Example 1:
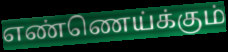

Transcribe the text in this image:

எண்ணெய்க்கும்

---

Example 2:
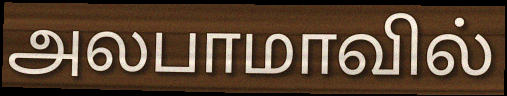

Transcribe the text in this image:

அலபாமாவில்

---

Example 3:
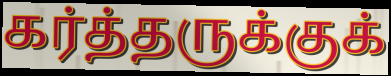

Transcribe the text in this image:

கர்த்தருக்குக்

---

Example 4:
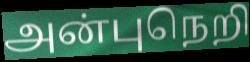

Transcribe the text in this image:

அன்புநெறி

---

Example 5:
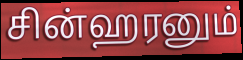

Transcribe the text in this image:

சின்ஹரனும்